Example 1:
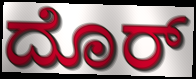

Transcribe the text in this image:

ದೊರ್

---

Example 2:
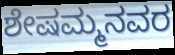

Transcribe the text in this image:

ಶೇಷಮ್ಮನವರ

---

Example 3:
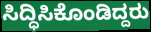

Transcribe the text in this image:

ಸಿದ್ಧಿಸಿಕೊಂಡಿದ್ದರು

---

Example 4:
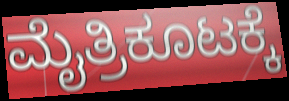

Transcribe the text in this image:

ಮೈತ್ರಿಕೂಟಕ್ಕೆ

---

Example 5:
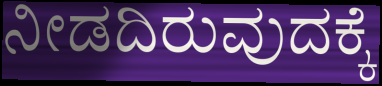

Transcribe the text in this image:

ನೀಡದಿರುವುದಕ್ಕೆ